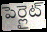
పెర్లైట్